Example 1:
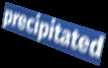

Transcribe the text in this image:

precipitated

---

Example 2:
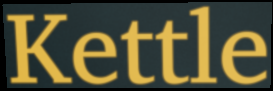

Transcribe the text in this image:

Kettle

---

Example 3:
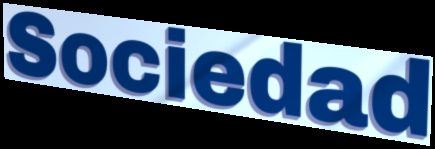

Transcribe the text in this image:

Sociedad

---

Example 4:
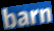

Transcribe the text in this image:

barn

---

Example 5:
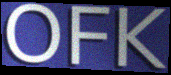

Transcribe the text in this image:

OFK